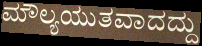
ಮೌಲ್ಯಯುತವಾದದ್ದು